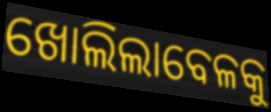
ଖୋଲିଲାବେଳକୁ